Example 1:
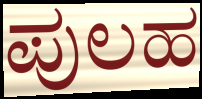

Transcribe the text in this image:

ಪುಲಹ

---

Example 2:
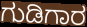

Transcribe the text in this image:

ಗುಡಿಗಾರ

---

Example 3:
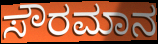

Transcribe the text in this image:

ಸೌರಮಾನ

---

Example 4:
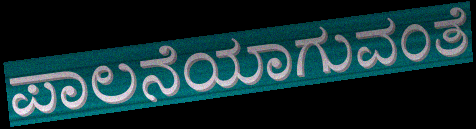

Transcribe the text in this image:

ಪಾಲನೆಯಾಗುವಂತೆ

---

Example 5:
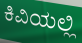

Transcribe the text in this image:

ಕಿವಿಯಲ್ಲಿ